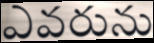
ఎవరును